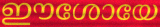
ഈശോയേ